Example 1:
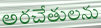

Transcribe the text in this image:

అరచేతులను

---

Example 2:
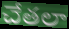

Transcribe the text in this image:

చేతలా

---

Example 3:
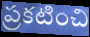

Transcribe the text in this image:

ప్రకటించి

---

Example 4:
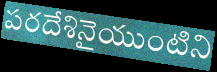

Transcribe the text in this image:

పరదేశినైయుంటిని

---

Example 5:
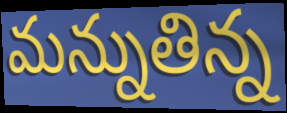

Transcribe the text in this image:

మన్నుతిన్న